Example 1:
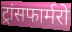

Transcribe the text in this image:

ट्रांसफार्मरो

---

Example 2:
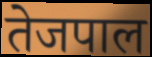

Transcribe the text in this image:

तेजपाल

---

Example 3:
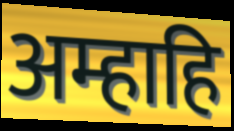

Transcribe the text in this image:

अम्हाहि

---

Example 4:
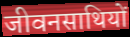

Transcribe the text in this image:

जीवनसाथियों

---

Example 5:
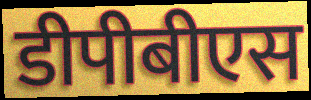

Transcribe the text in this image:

डीपीबीएस